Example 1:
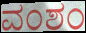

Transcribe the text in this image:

ವಂಶಂ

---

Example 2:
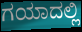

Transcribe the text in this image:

ಗಯಾದಲ್ಲಿ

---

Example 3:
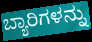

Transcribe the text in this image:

ಬ್ಯಾರಿಗಳನ್ನು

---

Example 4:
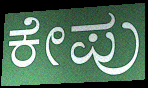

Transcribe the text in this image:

ಕೇಪು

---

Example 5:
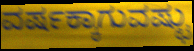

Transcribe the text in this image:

ವರ್ಷಕ್ಕಾಗುವಷ್ಟು